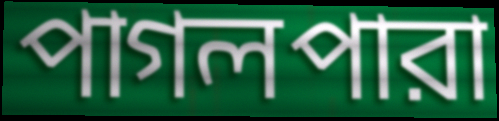
পাগলপারা